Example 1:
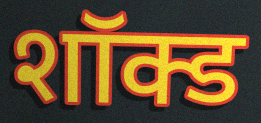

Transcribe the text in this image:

शॉक्ड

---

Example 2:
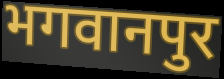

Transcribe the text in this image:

भगवानपुर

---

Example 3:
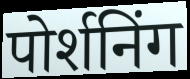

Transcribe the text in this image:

पोर्शनिंग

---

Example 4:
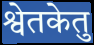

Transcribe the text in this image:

श्वेतकेतु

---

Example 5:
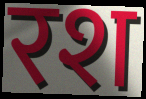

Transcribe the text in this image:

रश